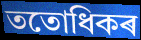
ততোধিকৰ